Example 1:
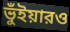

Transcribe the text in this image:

ভুঁইয়ারও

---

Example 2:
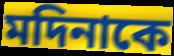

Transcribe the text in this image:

মদিনাকে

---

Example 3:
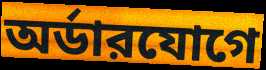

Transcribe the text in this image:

অর্ডারযোগে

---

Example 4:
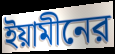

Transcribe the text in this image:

ইয়ামীনের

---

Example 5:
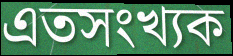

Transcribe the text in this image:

এতসংখ্যক